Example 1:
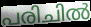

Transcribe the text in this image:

പരിചിൽ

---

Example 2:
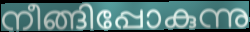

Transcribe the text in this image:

നീങ്ങിപ്പോകുന്നു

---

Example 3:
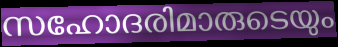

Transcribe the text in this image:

സഹോദരിമാരുടെയും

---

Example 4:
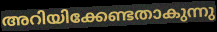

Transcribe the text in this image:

അറിയിക്കേണ്ടതാകുന്നു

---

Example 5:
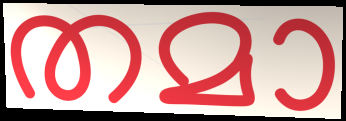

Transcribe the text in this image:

തമാ